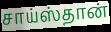
சாய்ஸ்தான்